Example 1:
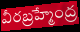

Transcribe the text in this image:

వీరబ్రహ్మేంద్ర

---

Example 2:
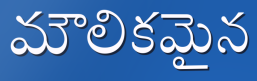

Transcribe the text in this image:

మౌలికమైన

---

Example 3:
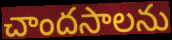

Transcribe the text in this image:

చాందసాలను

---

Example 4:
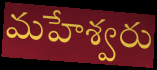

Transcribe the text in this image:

మహేశ్వరు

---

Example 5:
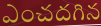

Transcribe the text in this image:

ఎంచదగిన